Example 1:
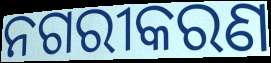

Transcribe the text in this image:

ନଗରୀକରଣ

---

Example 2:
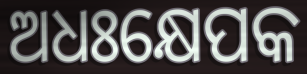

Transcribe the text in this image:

ଅଧଃକ୍ଷେପକ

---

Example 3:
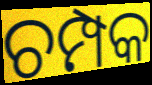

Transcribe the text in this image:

ଚମ୍ପକ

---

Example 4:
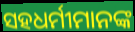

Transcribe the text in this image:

ସହଧର୍ମୀମାନଙ୍କ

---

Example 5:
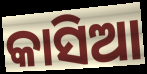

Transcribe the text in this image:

କାସିଆ